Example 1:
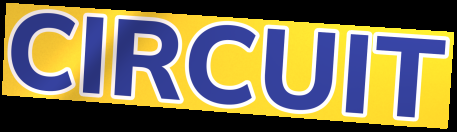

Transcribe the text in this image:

CIRCUIT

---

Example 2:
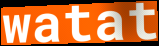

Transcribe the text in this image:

watat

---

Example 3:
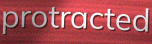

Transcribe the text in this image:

protracted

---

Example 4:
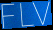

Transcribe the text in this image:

FLV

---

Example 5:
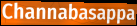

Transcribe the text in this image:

Channabasappa